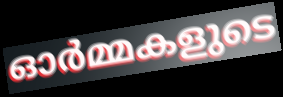
ഓർമ്മകളുടെ